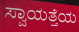
ಸ್ವಾಯತ್ತೆಯ